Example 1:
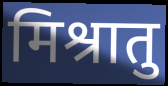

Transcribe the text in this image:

मिश्रातु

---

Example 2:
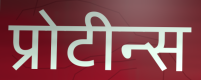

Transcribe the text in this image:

प्रोटीन्स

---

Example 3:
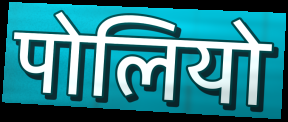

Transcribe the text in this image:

पोलियो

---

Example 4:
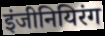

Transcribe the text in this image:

इंजीनियिरंग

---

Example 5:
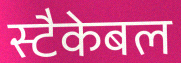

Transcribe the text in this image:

स्टैकेबल